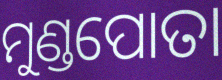
ମୁଣ୍ଡପୋତା